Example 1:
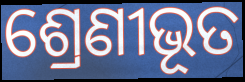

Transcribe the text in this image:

ଶ୍ରେଣୀଭୂତ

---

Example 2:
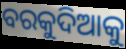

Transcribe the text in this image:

ବରକୁଦିଆକୁ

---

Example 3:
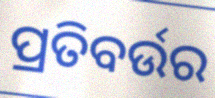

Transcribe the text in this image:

ପ୍ରତିବର୍ଉର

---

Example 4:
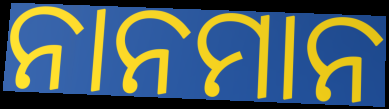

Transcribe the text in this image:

ନାନମାନ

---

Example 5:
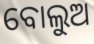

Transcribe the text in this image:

ବୋଲୁଅ